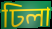
ঢিলা